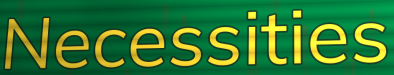
Necessities